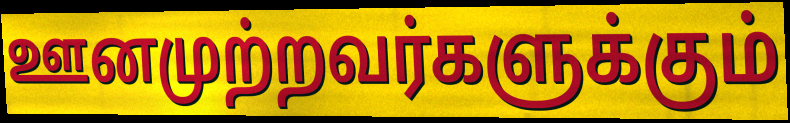
ஊனமுற்றவர்களுக்கும்